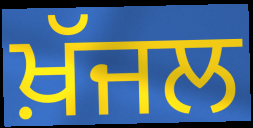
ਖ਼ੱਜਲ